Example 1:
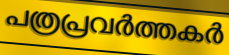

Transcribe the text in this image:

പത്രപ്രവർത്തകർ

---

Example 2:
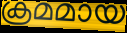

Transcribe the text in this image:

ക്രമമായ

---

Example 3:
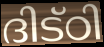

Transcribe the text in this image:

ദിട്ഠി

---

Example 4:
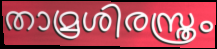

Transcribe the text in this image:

താമ്രശിരസ്ത്രം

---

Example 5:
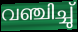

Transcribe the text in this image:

വഞ്ചിച്ചു്